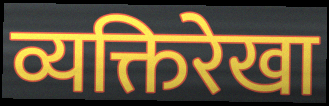
व्यक्तिरेखा